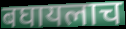
बघायलाच